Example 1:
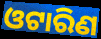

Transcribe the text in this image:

ଓଟାରିଣ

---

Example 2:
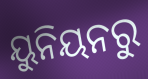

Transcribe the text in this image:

ୟୁନିୟନରୁ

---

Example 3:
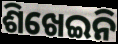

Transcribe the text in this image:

ଶିଖେଇନି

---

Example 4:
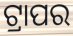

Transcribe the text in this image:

ଟ୍ରାପର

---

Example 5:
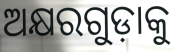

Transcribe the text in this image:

ଅକ୍ଷରଗୁଡ଼ାକୁ